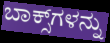
ಬಾಕ್ಸ್‌ಗಳನ್ನು